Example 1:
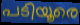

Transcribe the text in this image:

പടിയൂരെ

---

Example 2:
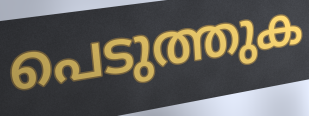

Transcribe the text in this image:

പെടുത്തുക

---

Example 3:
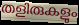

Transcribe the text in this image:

തളിരുകളും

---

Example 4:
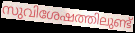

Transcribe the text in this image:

സുവിശേഷത്തിലുണ്ട്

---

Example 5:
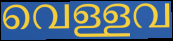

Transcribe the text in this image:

വെള്ളവ